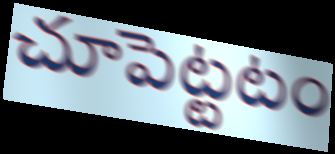
చూపెట్టటం